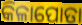
କିଳାପୋତା